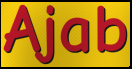
Ajab